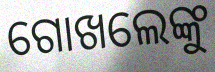
ଗୋଖଲେଙ୍କୁ